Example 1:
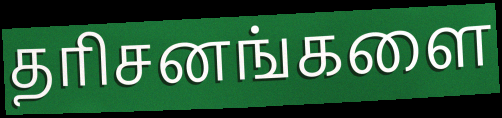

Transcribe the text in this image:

தரிசனங்களை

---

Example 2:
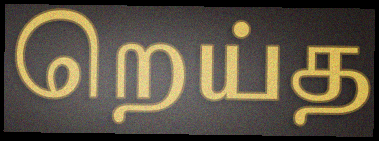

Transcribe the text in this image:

றெய்த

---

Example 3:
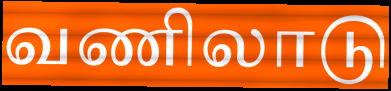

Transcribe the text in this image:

வணிலாடு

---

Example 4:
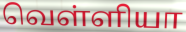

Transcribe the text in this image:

வெள்ளியா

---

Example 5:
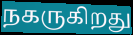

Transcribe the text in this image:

நகருகிறது